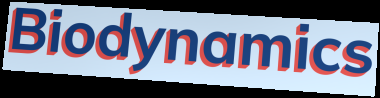
Biodynamics